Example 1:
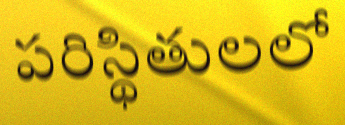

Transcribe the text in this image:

పరిస్థితులలో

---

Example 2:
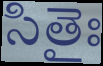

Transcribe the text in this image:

సితైః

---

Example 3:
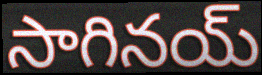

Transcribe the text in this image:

సాగినయ్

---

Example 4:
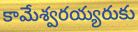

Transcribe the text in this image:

కామేశ్వరయ్యరుకు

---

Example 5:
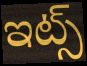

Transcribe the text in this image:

ఇట్స్